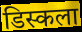
डिस्कला